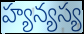
హ్యన్యస్య